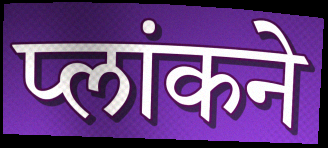
प्लांकने